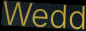
Wedd